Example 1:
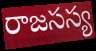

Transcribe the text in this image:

రాజసస్య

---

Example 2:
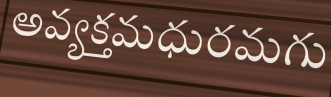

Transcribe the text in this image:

అవ్యక్తమధురమగు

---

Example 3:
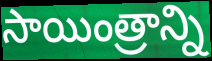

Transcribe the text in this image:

సాయింత్రాన్ని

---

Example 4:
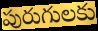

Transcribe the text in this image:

పురుగులకు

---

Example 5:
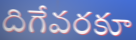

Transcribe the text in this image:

దిగేవరకూ